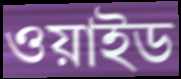
ওয়াইড